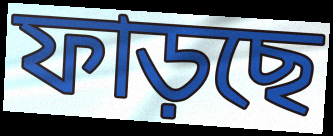
ফাড়ছে